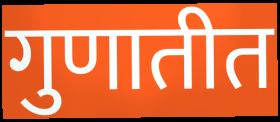
गुणातीत